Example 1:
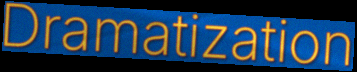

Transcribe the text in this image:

Dramatization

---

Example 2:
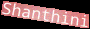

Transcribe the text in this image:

Shanthini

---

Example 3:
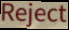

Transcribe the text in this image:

Reject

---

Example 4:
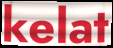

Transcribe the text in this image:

kelat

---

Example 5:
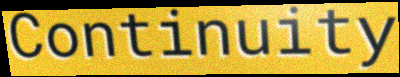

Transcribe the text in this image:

Continuity